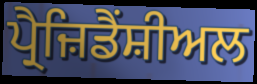
ਪ੍ਰੈਜ਼ਿਡੈਂਸ਼ੀਅਲ